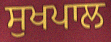
ਸੁਖਪਾਲ